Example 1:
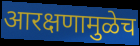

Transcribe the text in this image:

आरक्षणामुळेच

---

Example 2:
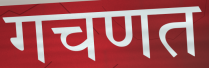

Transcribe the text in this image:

गचणत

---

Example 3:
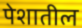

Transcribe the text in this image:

पेशातील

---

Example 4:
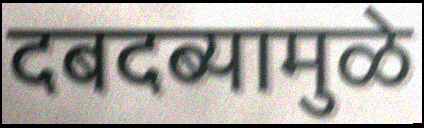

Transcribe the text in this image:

दबदब्यामुळे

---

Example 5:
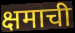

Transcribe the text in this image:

क्षमाची